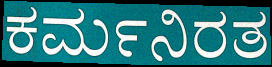
ಕರ್ಮನಿರತ